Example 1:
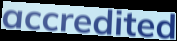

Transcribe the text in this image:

accredited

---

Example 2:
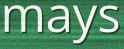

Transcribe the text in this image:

mays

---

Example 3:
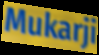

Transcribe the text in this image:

Mukarji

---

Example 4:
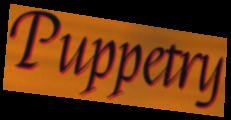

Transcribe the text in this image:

Puppetry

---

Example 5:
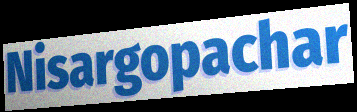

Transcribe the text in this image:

Nisargopachar